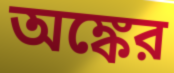
অঙ্কের